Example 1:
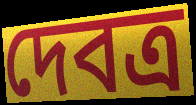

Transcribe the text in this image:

দেবত্র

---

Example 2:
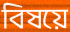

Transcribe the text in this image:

বিষয়ে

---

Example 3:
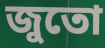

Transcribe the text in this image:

জুতো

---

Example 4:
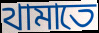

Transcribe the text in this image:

থামাতে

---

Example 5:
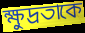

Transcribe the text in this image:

ক্ষুদ্রতাকে